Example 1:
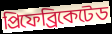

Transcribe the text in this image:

প্রিফেব্রিকেটেড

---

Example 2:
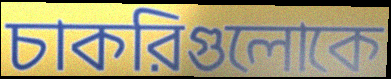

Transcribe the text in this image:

চাকরিগুলোকে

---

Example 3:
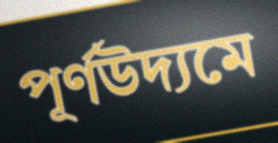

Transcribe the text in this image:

পূর্ণউদ্যমে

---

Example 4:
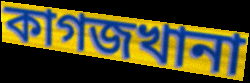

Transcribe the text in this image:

কাগজখানা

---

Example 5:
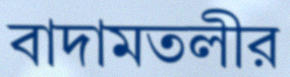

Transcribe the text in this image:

বাদামতলীর